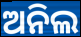
ଅନିଲ